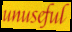
unuseful